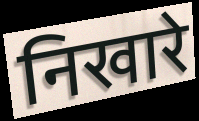
निखारे